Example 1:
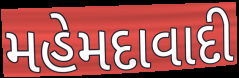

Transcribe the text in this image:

મહેમદાવાદી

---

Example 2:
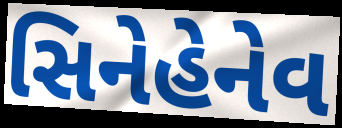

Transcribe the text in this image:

સિનેહેનેવ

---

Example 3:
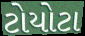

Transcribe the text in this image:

ટોયોટા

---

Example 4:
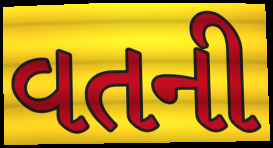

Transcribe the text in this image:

વતની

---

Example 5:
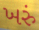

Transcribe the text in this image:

ખરું